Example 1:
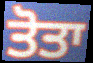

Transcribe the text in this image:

ਤੋਤਾ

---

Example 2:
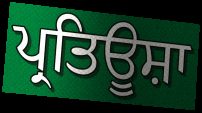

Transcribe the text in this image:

ਪ੍ਰਤਿਊਸ਼ਾ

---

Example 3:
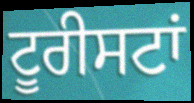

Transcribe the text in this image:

ਟੂਰੀਸਟਾਂ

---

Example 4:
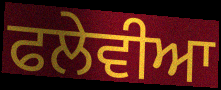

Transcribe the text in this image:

ਫਲੇਵੀਆ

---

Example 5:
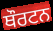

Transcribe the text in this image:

ਥੌਰਟਨ